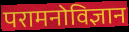
परामनोविज्ञान